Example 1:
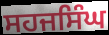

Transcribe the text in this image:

ਸਹਜਸਿੰਘ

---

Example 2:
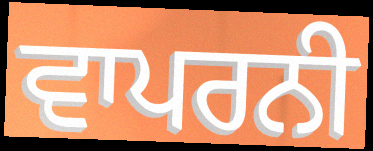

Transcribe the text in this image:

ਵਾਪਰਨੀ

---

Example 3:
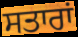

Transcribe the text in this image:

ਸਤਾਰਾਂ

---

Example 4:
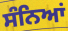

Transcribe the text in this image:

ਸੰਨਿਆਂ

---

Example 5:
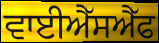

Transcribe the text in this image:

ਵਾਈਐੱਸਐੱਫ